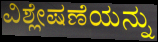
ವಿಶ್ಲೇಷಣೆಯನ್ನು